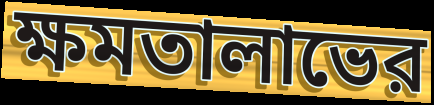
ক্ষমতালাভের